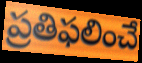
ప్రతిఫలించే